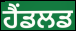
ਹੈਂਡਲਡ